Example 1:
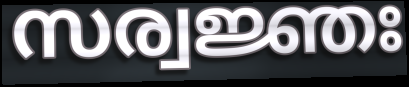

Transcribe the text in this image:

സര്വജ്ഞഃ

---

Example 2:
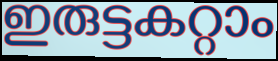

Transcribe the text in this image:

ഇരുട്ടകറ്റാം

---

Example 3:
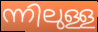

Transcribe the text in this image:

ന്നിലുള്ള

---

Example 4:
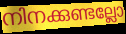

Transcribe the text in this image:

നിനക്കുണ്ടല്ലോ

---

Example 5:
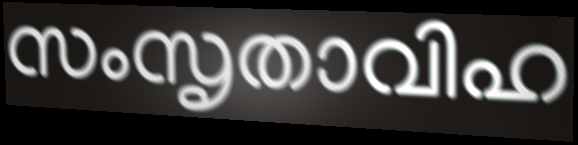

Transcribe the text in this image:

സംസൃതാവിഹ